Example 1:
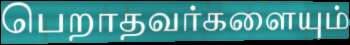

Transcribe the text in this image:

பெறாதவர்களையும்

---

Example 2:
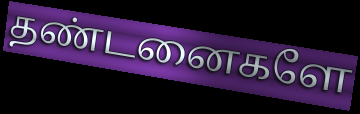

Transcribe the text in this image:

தண்டனைகளே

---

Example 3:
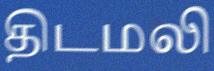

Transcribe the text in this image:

திடமலி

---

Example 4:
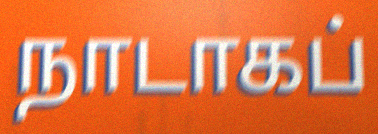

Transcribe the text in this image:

நாடாகப்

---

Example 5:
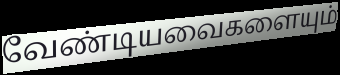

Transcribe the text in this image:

வேண்டியவைகளையும்